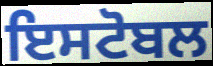
ਇਸਟੋਬਲ